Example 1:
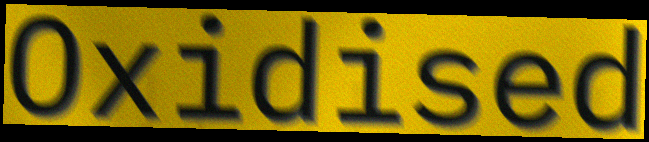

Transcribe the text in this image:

Oxidised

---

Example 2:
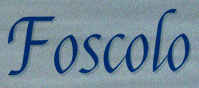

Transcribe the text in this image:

Foscolo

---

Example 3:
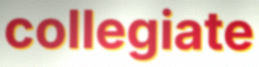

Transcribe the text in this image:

collegiate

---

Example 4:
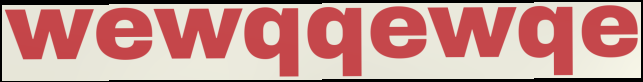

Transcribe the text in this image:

wewqqewqe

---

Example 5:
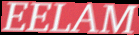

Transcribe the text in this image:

EELAM